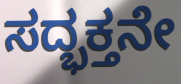
ಸದ್ಭಕ್ತನೇ